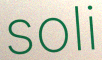
soli